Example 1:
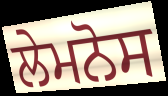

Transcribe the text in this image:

ਲੇਮਨੋਸ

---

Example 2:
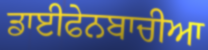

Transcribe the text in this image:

ਡਾਈਫੇਨਬਾਚੀਆ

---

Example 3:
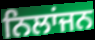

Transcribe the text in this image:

ਨਿਲਾਂਜਨ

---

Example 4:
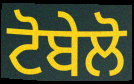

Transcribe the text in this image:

ਟੋਬੇਲੋ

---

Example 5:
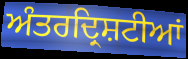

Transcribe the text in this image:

ਅੰਤਰਦ੍ਰਿਸ਼ਟੀਆਂ